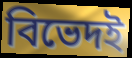
বিভেদই